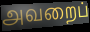
அவறைப்